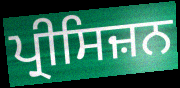
ਪ੍ਰੀਸਿਜ਼ਨ